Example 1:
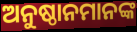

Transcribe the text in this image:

ଅନୁଷ୍ଠାନମାନଙ୍କ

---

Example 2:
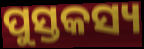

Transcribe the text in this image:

ପୁସ୍ତକସ୍ୟ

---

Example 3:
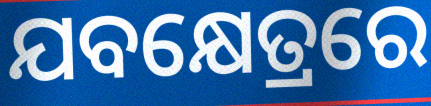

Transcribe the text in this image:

ଯବକ୍ଷେତ୍ରରେ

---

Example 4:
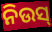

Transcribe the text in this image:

ନିଉସ୍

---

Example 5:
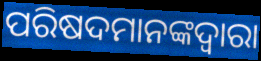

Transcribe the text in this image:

ପରିଷଦମାନଙ୍କଦ୍ୱାରା